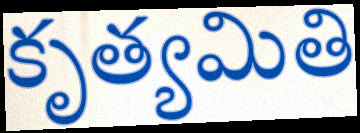
కృత్యమితి